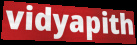
vidyapith